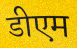
डीएम